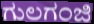
ಗುಲಗಂಜಿ